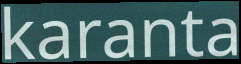
karanta